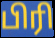
பிரி